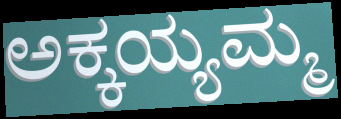
ಅಕ್ಕಯ್ಯಮ್ಮ